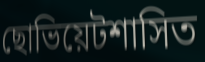
ছোভিয়েটশাসিত